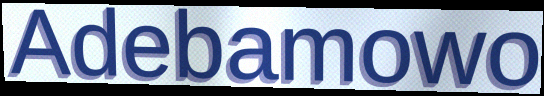
Adebamowo